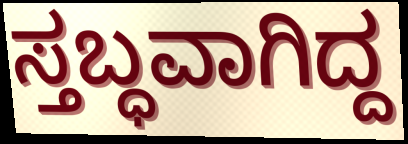
ಸ್ತಬ್ಧವಾಗಿದ್ದ